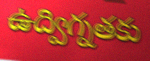
ఉద్విగ్నతకు